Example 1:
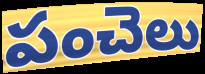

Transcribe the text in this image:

పంచెలు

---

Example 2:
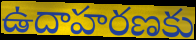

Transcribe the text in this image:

ఉదాహరణకు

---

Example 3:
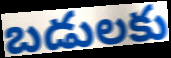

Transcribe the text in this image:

బడులకు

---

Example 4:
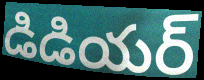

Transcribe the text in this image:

డిడియర్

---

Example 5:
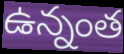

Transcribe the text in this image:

ఉన్నంత